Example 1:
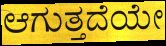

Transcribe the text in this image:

ಆಗುತ್ತದೆಯೇ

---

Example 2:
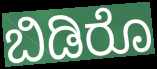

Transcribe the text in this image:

ಬಿಡಿರೊ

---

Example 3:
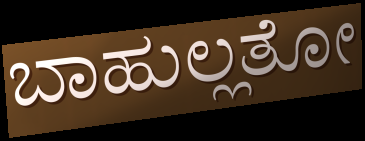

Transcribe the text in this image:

ಬಾಹುಲ್ಲತೋ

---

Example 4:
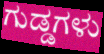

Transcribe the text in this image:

ಗುಡ್ಡಗಳು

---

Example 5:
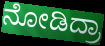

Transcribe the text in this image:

ನೋಡಿದ್ರಾ